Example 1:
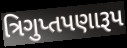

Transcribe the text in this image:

ત્રિગુપ્તપણારૂપ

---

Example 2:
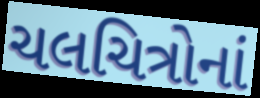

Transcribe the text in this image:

ચલચિત્રોનાં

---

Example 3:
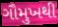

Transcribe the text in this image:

ગૌમુખથી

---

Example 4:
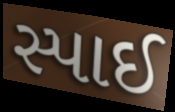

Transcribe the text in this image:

સ્પાઈ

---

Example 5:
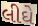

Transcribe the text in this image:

લીઘે